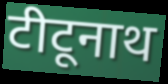
टीटूनाथ